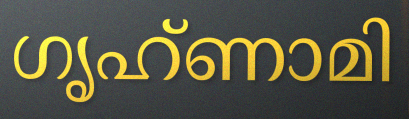
ഗൃഹ്ണാമി